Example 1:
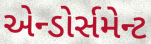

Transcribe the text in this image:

એન્ડોર્સમેન્ટ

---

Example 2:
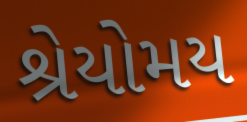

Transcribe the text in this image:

શ્રેયોમય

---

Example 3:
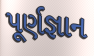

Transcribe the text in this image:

પૂર્ણજ્ઞાન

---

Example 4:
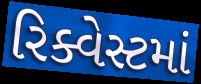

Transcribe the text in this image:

રિક્વેસ્ટમાં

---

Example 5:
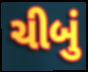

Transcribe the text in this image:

ચીબું